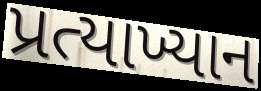
પ્રત્યાખ્યાન